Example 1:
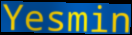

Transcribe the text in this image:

Yesmin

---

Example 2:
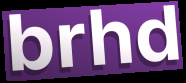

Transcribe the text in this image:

brhd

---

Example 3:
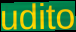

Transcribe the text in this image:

udito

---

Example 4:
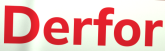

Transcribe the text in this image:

Derfor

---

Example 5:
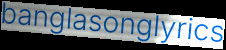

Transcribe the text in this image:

banglasonglyrics